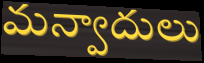
మన్వాదులు